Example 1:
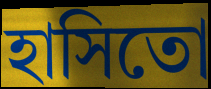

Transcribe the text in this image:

হাসিতো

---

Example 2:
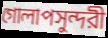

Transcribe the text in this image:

গোলাপসুন্দরী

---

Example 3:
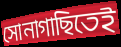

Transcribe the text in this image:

সোনাগাছিতেই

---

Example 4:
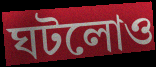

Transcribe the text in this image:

ঘটলোও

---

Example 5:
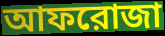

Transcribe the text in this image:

আফরোজা